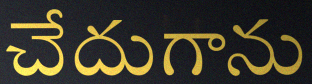
చేదుగాను